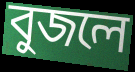
বুজলে